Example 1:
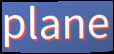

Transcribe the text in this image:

plane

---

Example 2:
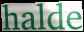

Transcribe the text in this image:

halde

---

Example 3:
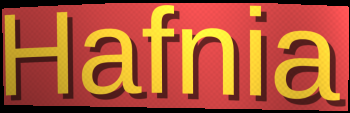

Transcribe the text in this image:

Hafnia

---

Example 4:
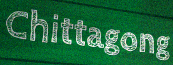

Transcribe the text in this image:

Chittagong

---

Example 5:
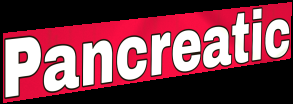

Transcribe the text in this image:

Pancreatic